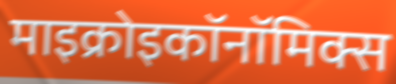
माइक्रोइकॉनॉमिक्स